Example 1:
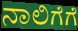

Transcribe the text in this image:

ನಾಲಿಗೆಗೆ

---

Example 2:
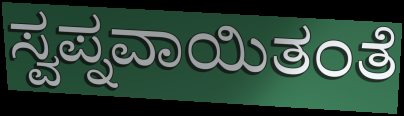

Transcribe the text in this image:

ಸ್ವಪ್ನವಾಯಿತಂತೆ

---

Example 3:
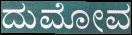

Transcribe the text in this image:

ದುಮೋವ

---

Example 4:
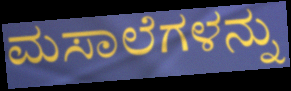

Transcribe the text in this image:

ಮಸಾಲೆಗಳನ್ನು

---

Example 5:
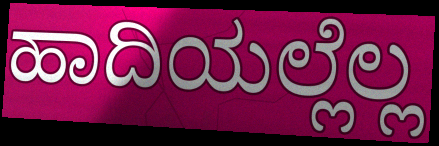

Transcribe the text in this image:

ಹಾದಿಯಲ್ಲೆಲ್ಲ